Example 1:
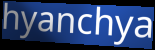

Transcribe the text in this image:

hyanchya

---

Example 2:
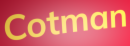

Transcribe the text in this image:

Cotman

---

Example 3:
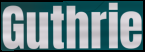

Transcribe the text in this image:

Guthrie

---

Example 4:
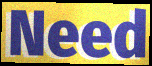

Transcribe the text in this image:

Need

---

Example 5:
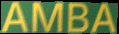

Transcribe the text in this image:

AMBA